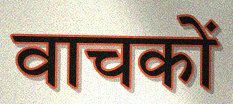
वाचकों